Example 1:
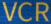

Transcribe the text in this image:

VCR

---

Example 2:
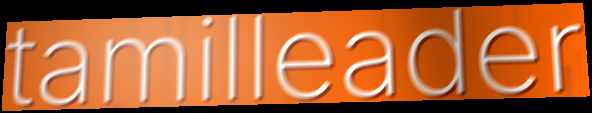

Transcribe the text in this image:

tamilleader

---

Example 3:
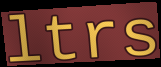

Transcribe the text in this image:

ltrs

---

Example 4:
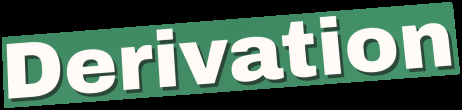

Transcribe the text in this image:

Derivation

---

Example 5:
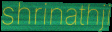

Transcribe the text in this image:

shrinathji